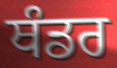
ਥੰਡਰ